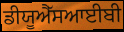
ਡੀਯੂਐੱਸਆਈਬੀ